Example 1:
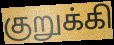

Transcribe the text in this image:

குறுக்கி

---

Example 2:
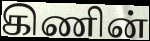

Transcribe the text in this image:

கிணின்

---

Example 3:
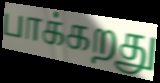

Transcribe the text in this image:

பாக்கறது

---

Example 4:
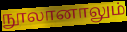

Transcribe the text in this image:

நூலானாலும்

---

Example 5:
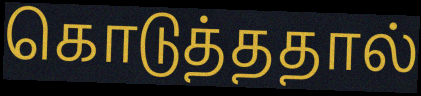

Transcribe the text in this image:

கொடுத்ததால்